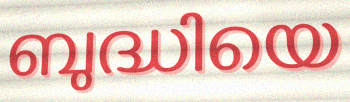
ബുദ്ധിയെ